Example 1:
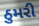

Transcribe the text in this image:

ઠુમરી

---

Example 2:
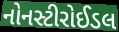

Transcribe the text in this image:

નોનસ્ટીરોઈડલ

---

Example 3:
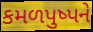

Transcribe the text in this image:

કમળપુષ્પને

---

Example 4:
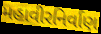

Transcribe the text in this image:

મહાવીરનિર્વાણ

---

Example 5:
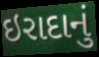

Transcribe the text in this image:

ઇરાદાનું